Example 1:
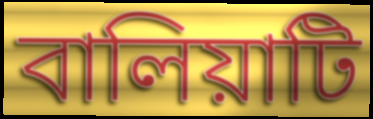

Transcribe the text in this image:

বালিয়াটি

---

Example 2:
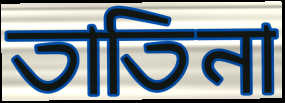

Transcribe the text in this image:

তাতিনা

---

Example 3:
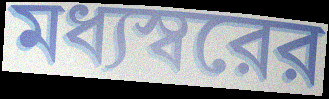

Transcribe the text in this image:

মধ্যস্বরের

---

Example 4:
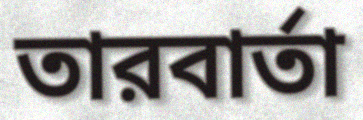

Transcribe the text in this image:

তারবার্তা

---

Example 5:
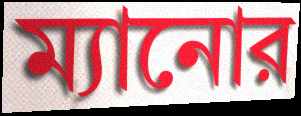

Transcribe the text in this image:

ম্যানোর